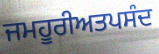
ਜਮਹੂਰੀਅਤਪਸੰਦ